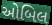
ઓબિલ